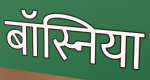
बॉस्निया